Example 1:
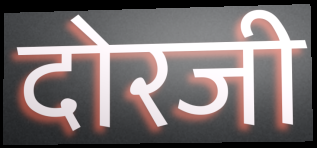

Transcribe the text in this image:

दोरजी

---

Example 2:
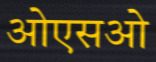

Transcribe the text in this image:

ओएसओ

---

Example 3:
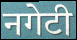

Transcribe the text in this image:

नगेटी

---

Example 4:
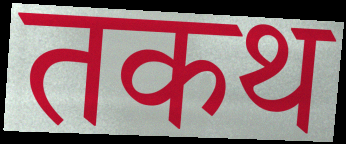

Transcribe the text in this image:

तकथ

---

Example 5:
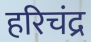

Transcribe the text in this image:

हरिचंद्र